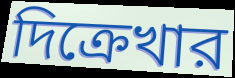
দিক্রেখার